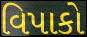
વિપાકો